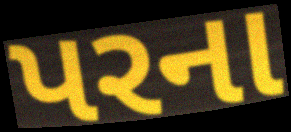
પરના